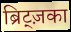
ब्रिट्ज़का